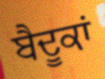
ਬੈਦੂਕਾਂ